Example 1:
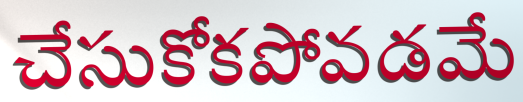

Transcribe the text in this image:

చేసుకోకపోవడమే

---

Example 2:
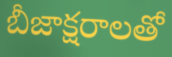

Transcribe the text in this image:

బీజాక్షరాలతో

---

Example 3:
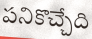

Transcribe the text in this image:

పనికొచ్చేది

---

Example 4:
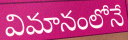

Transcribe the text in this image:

విమానంలోనే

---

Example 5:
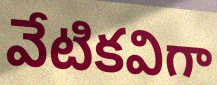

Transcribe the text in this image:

వేటికవిగా